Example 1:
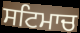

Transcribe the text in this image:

ਸਟਿਮਾਚ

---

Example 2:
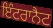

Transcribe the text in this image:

ਇੰਟਰਾਨੈਟ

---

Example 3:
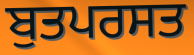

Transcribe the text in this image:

ਬੁਤਪਰਸਤ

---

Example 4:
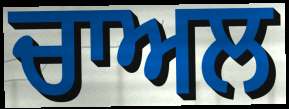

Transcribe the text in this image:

ਚਾਅਲ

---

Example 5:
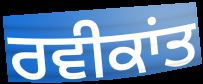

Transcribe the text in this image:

ਰਵੀਕਾਂਤ